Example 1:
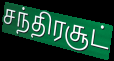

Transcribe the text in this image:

சந்திரசூட்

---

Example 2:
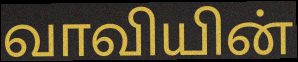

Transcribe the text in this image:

வாவியின்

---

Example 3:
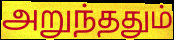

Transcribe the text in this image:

அறுந்ததும்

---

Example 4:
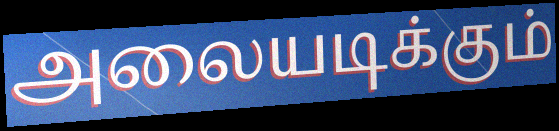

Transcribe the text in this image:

அலையடிக்கும்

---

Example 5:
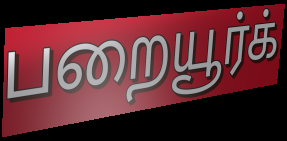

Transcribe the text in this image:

பறையூர்க்